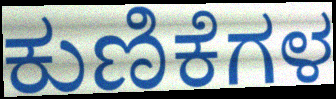
ಕುಣಿಕೆಗಳ